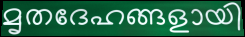
മൃതദേഹങ്ങളായി